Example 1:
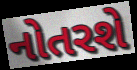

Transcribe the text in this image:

નોતરશે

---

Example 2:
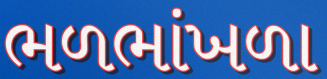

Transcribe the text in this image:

ભળભાંખળા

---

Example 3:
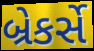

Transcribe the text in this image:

બ્રેકર્સે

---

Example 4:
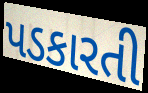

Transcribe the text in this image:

પડકારતી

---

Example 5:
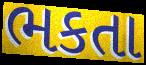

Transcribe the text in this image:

ભકતા